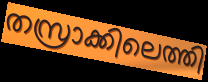
തസ്രാക്കിലെത്തി